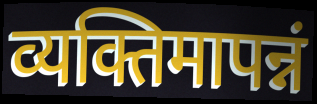
व्यक्तिमापन्नं